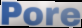
Pore